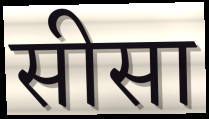
सीसा